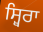
ਸ੍ਥਿਰਾ